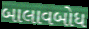
બાલાવબોધ